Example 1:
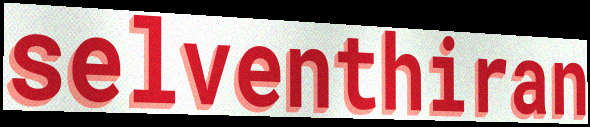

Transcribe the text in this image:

selventhiran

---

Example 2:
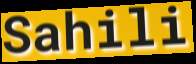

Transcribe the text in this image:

Sahili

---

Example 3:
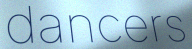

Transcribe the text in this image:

dancers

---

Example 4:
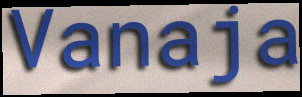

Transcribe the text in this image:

Vanaja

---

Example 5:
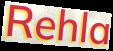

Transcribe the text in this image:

Rehla